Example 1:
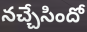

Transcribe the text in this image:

నచ్చేసిందో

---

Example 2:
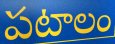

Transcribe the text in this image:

పటాలం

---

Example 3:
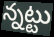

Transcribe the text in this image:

న్నట్టు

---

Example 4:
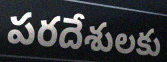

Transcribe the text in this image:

పరదేశులకు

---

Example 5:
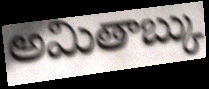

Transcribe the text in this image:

అమితాబ్కు